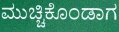
ಮುಚ್ಚಿಕೊಂಡಾಗ